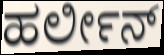
ಹರ್ಲೀನ್